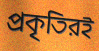
প্রকৃতিরই